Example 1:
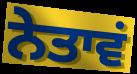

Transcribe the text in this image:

ਨੇਤਾਵਂ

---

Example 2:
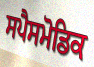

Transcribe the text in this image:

ਸਪੈਸਮੋਡਿਕ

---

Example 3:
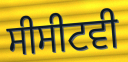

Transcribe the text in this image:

ਸੀਸੀਟਵੀ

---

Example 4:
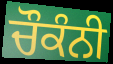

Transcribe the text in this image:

ਚੌਕੰਨੀ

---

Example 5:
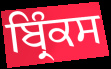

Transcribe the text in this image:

ਬ੍ਰਿੰਕਸ